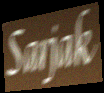
Sarjak